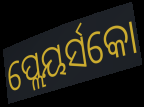
ପ୍ଲେୟର୍ସକୋ